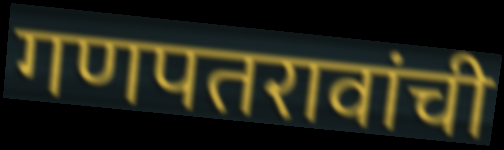
गणपतरावांची